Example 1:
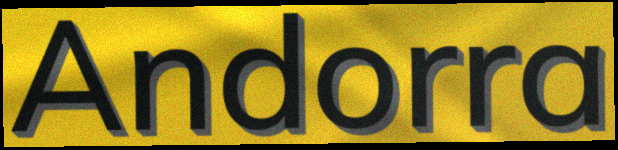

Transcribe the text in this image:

Andorra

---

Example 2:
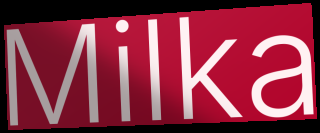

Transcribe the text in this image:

Milka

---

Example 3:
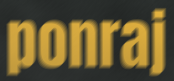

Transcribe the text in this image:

ponraj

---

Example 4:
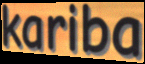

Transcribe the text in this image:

kariba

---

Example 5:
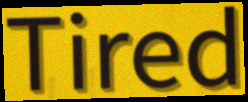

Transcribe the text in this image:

Tired